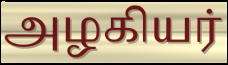
அழகியர்